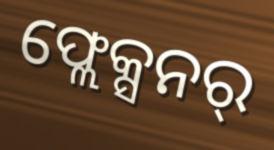
ଫ୍ଲେକ୍ସନର୍